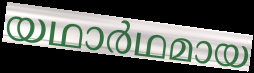
യഥാർഥമായ